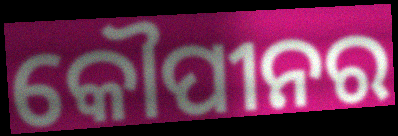
କୌପୀନର